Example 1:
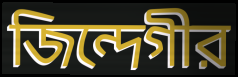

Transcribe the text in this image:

জিন্দেগীর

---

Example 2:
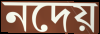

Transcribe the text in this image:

নদেয়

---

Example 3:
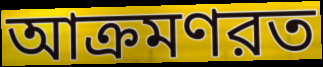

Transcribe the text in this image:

আক্রমণরত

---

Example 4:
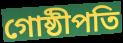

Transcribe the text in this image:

গোষ্ঠীপতি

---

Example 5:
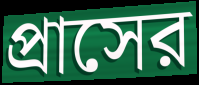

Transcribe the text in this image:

প্রাসের